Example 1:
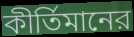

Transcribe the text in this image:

কীর্তিমানের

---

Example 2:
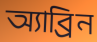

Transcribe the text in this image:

অ্যাব্রিন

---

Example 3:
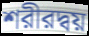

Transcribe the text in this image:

শরীরদ্বয়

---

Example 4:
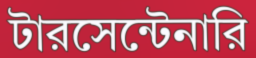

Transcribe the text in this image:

টারসেন্টেনারি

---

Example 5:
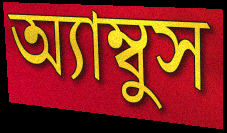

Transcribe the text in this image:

অ্যাম্বুস